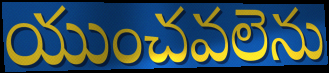
యుంచవలెను